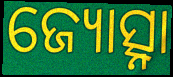
ଜ୍ୟୋତ୍ସ୍ନା